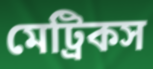
মেট্রিকস